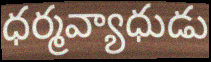
ధర్మవ్యాధుడు